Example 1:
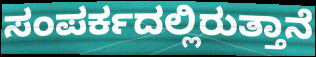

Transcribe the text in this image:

ಸಂಪರ್ಕದಲ್ಲಿರುತ್ತಾನೆ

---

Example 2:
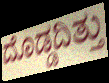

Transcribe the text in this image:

ದೊಡ್ಡದಿತ್ತು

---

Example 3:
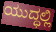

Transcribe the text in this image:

ಯುದ್ಧಲ್ಲಿ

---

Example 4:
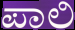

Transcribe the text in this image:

ಪಾಲಿ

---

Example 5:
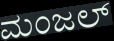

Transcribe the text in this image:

ಮಂಜಲ್